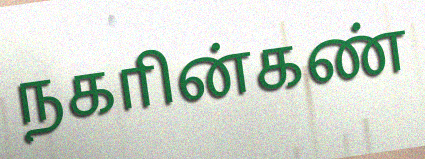
நகரின்கண்